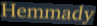
Hemmady